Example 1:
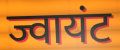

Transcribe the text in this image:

ज्वायंट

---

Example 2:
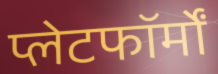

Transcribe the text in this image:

प्लेटफॉर्मों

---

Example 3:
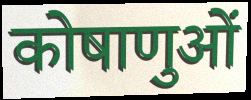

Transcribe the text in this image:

कोषाणुओं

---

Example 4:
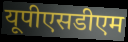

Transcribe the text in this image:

यूपीएसडीएम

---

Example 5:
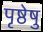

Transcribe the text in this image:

पृष्ठेषु